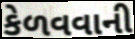
કેળવવાની